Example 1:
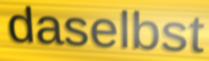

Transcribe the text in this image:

daselbst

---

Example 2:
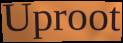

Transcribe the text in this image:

Uproot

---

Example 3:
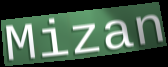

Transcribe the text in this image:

Mizan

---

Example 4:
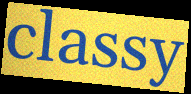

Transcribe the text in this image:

classy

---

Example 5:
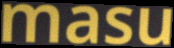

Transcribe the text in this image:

masu